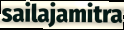
sailajamitra